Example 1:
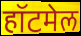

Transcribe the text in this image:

हॉटमेल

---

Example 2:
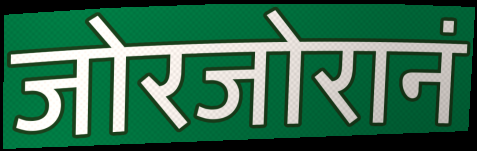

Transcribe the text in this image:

जोरजोरानं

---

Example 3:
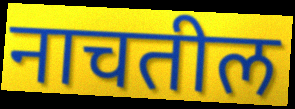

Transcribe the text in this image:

नाचतील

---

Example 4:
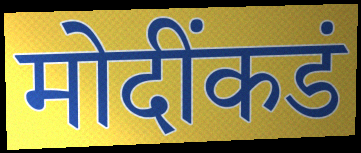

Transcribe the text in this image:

मोदींकडं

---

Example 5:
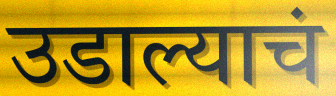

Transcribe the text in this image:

उडाल्याचं